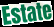
Estate